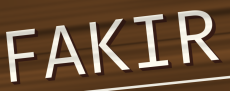
FAKIR